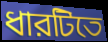
ধারটিতে